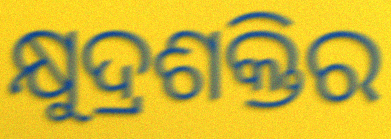
କ୍ଷୁଦ୍ରଶକ୍ତିର